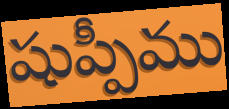
షుప్పీము